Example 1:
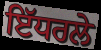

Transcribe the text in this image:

ਇੱਧਰਲੇ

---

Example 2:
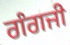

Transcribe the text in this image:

ਗੰਗਜੀ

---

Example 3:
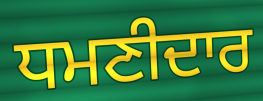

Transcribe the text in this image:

ਧਮਣੀਦਾਰ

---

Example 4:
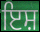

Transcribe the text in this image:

ਇਸ਼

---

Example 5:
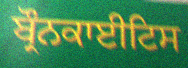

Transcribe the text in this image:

ਬ੍ਰੌਨਕਾਈਟਿਸ